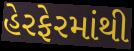
હેરફેરમાંથી